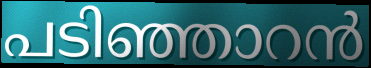
പടിഞ്ഞാറൻ